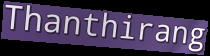
Thanthirang